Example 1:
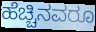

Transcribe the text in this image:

ಹೆಚ್ಚಿನವರೂ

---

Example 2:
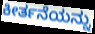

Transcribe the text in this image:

ಕೀರ್ತನೆಯನ್ನು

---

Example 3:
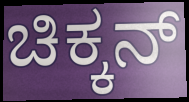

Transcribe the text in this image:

ಚಿಕ್ಕನ್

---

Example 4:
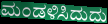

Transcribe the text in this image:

ಮಂಡಳಿಸಿದುದು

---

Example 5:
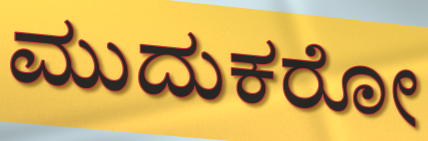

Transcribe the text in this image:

ಮುದುಕರೋ